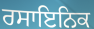
ਰਸਾਇਨਿਕ